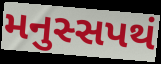
મનુસ્સપથં